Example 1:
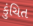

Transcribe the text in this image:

કુંચિત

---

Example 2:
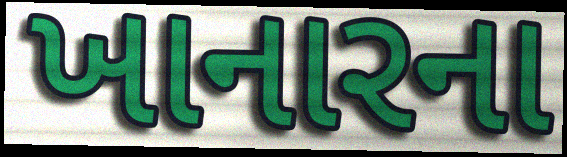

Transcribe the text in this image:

ખાનારના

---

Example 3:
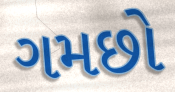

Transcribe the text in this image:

ગમછો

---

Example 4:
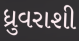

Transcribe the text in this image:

ધ્રુવરાશી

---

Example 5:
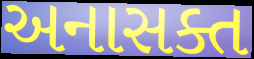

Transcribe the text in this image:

અનાસક્ત